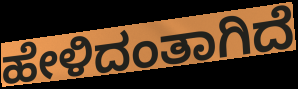
ಹೇಳಿದಂತಾಗಿದೆ